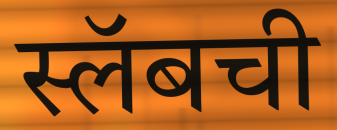
स्लॅबची